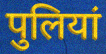
पुलियां